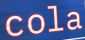
cola